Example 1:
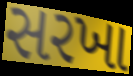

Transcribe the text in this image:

સરખા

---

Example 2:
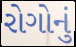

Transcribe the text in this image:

રોગોનું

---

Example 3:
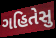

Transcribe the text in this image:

ગહિતેસુ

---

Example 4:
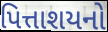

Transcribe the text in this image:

પિત્તાશયનો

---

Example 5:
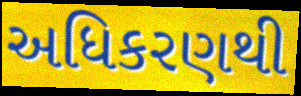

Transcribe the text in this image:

અધિકરણથી